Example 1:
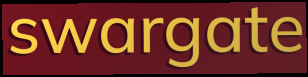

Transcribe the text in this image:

swargate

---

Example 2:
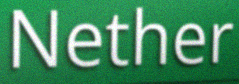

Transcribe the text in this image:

Nether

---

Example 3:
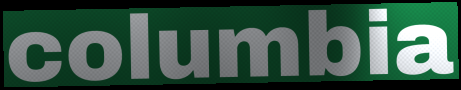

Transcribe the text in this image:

columbia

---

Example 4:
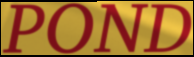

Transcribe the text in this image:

POND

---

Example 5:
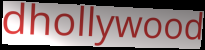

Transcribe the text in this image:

dhollywood